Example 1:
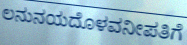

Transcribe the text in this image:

ಲನುನಯದೊಳವನೀಪತಿಗೆ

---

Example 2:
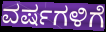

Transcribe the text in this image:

ವರ್ಷಗಳಿಗೆ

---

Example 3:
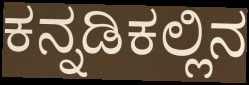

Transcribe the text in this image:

ಕನ್ನಡಿಕಲ್ಲಿನ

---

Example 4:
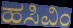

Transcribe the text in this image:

ಹಸಿವಿಂ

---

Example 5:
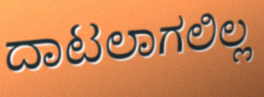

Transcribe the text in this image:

ದಾಟಲಾಗಲಿಲ್ಲ